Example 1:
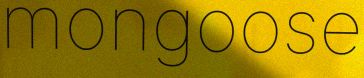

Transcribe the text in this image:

mongoose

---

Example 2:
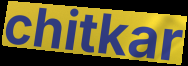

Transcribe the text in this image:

chitkar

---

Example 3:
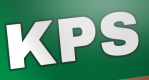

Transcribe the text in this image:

KPS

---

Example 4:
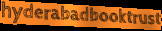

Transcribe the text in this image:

hyderabadbooktrust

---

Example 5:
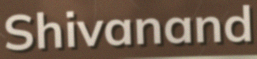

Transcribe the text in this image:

Shivanand